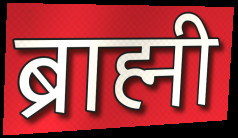
ब्राह्मी